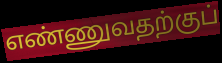
எண்ணுவதற்குப்